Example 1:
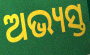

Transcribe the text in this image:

ଅଭ୍ୟସ୍ତ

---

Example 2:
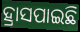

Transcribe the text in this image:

ହ୍ରାସପାଇଛି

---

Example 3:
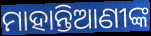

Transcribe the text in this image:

ମାହାନ୍ତିଆଣୀଙ୍କ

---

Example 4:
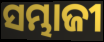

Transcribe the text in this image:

ସମ୍ଭାଜୀ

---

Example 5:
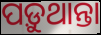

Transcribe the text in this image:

ପଡ଼ୁଥାନ୍ତା